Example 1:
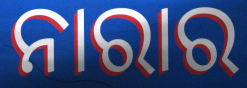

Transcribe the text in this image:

ନାରାର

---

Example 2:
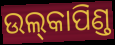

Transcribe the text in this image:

ଉଲ୍‌କାପିଣ୍ଡ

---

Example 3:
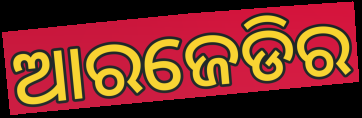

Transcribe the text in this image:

ଆରଜେଡିର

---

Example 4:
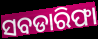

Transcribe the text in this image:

ସବଡାରିଫା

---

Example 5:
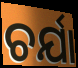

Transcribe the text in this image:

ଚର୍ଯା